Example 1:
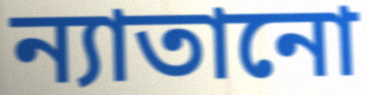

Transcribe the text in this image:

ন্যাতানো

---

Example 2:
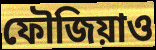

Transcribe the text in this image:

ফৌজিয়াও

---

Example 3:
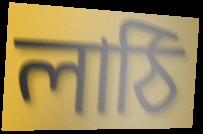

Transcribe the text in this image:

লাঠি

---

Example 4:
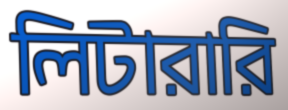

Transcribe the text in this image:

লিটারারি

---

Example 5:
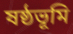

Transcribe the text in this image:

ষষ্ঠভূমি